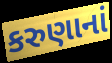
કરુણાનાં